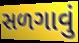
સળગાવું